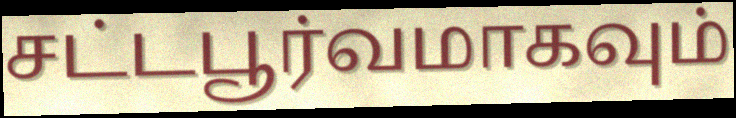
சட்டபூர்வமாகவும்